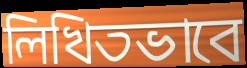
লিখিতভাবে